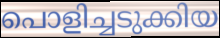
പൊളിച്ചടുക്കിയ